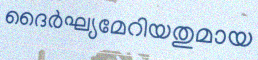
ദൈർഘ്യമേറിയതുമായ